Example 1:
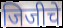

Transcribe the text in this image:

जिजीचे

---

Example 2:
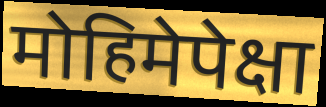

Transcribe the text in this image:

मोहिमेपेक्षा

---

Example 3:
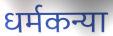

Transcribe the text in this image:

धर्मकन्या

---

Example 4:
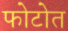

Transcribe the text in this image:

फोटोत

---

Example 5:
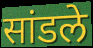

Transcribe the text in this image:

सांडले